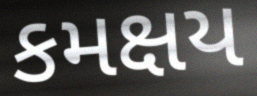
કમક્ષય